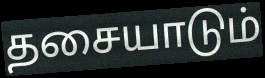
தசையாடும்